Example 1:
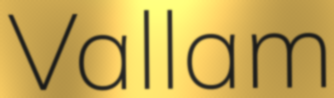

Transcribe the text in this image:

Vallam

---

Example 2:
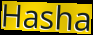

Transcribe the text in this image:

Hasha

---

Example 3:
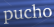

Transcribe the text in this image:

pucho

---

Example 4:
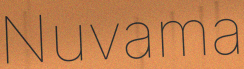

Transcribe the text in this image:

Nuvama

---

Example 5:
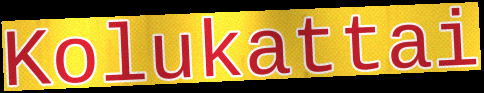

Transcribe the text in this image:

Kolukattai